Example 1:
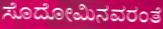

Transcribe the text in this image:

ಸೊದೋಮಿನವರಂತೆ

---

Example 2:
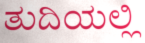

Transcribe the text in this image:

ತುದಿಯಲ್ಲಿ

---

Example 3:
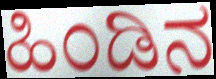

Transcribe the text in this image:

ಹಿಂಡಿನ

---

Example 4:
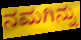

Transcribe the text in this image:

ನಮಗಿನ್ನು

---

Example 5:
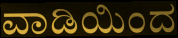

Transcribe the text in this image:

ವಾಡಿಯಿಂದ